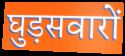
घुड़सवारों